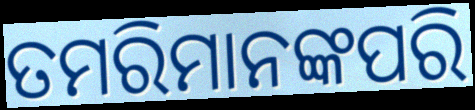
ତମରିମାନଙ୍କପରି